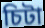
চিটা